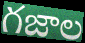
గజాల